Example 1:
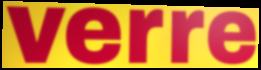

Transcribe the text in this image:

verre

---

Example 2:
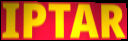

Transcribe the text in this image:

IPTAR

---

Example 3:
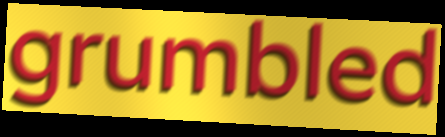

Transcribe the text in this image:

grumbled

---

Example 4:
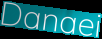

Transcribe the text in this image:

Danaei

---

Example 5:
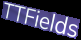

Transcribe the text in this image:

TTFields